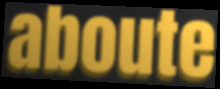
aboute